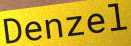
Denzel